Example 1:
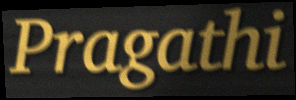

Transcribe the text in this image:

Pragathi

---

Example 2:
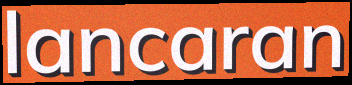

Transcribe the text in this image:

lancaran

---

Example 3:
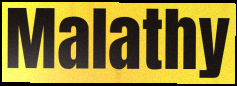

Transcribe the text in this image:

Malathy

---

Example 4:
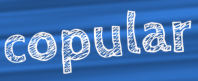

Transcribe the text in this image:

copular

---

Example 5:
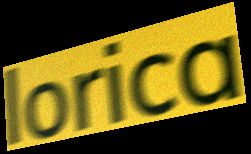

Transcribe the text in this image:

lorica